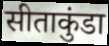
सीताकुंडा